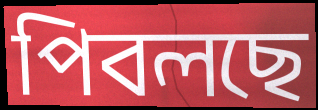
পিবলছে